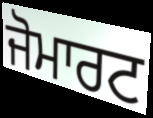
ਜੋਮਾਰਟ